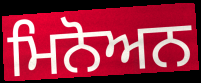
ਮਿਨੋਅਨ